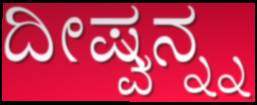
ದೀಷ್ವನ್ನ್ನ